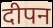
दीपन